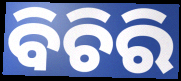
ବିଚିରି